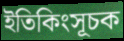
ইতিকিংসূচক